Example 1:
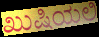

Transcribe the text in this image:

ಖುಷಿಯಲಿ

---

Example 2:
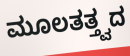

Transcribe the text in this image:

ಮೂಲತತ್ತ್ವದ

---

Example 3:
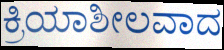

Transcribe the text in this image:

ಕ್ರಿಯಾಶೀಲವಾದ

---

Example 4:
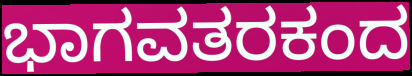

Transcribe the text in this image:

ಭಾಗವತರಕಂದ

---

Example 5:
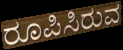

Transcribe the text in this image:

ರೂಪಿಸಿರುವ